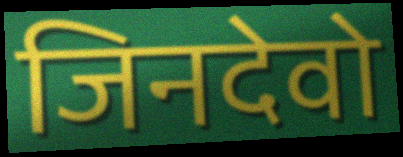
जिनदेवो